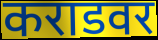
कराडवर